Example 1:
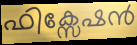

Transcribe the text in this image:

ഫിക്സേഷൻ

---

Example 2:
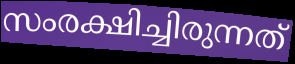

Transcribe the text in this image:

സംരക്ഷിച്ചിരുന്നത്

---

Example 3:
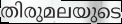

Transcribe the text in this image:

തിരുമലയുടെ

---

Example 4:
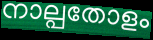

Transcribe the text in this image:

നാല്പതോളം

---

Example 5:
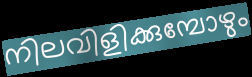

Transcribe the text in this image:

നിലവിളിക്കുമ്പോഴും